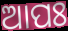
ଆପଃ